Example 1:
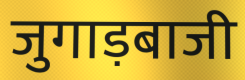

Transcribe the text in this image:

जुगाड़बाजी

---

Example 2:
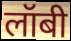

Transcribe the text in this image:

लॉबी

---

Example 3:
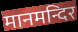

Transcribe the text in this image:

मानमन्दिर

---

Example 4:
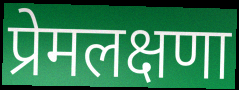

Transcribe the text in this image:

प्रेमलक्षणा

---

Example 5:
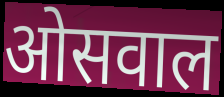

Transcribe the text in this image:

ओसवाल